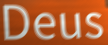
Deus